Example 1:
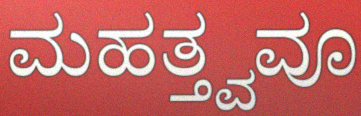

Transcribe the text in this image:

ಮಹತ್ತ್ವವೂ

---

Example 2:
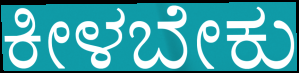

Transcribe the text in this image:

ಕೀಳಬೇಕು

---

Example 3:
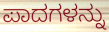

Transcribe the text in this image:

ಪಾದಗಳನ್ನು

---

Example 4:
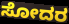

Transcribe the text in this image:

ಸೋದರ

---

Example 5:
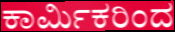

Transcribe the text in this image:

ಕಾರ್ಮಿಕರಿಂದ